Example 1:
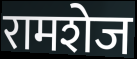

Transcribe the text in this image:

रामशेज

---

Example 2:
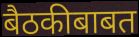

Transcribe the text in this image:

बैठकीबाबत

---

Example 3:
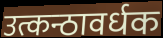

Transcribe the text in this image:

उत्कन्ठावर्धक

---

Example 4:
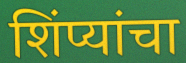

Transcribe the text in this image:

शिंप्यांचा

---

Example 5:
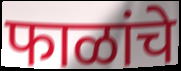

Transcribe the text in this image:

फाळांचे